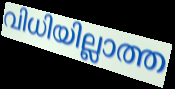
വിധിയില്ലാത്ത